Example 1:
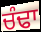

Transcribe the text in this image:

ਚੰਢਾ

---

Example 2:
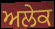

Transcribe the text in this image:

ਅਲੇਕ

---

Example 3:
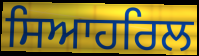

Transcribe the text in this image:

ਸਿਆਹਰਿਲ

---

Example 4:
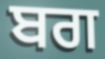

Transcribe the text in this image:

ਬਗ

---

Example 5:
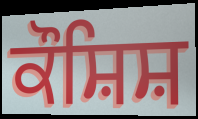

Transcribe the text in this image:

ਕੌਸ਼ਿਸ਼